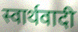
स्वार्थवादी